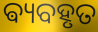
ଵ୍ୟବହୃତ